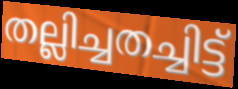
തല്ലിച്ചതച്ചിട്ട്